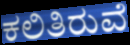
ಕಲಿತಿರುವೆ